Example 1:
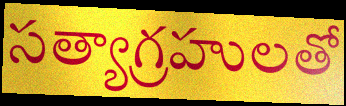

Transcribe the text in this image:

సత్యాగ్రహులతో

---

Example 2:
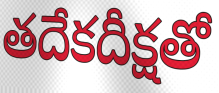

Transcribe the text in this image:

తదేకదీక్షతో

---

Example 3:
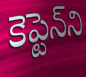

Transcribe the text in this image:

కెప్టెన్‌ని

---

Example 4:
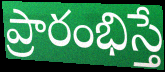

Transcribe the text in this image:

ప్రారంభిస్తే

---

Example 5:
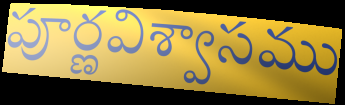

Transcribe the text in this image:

పూర్ణవిశ్వాసము